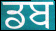
ਡਬ